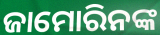
ଜାମୋରିନଙ୍କ